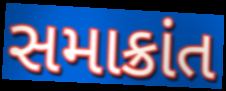
સમાક્રાંત